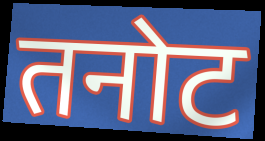
तनोट